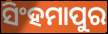
ସିଂହମାପୁର